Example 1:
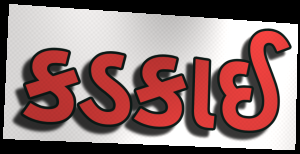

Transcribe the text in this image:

કડકાઈ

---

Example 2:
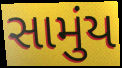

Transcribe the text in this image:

સામુંય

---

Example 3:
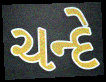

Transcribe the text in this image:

ચન્દે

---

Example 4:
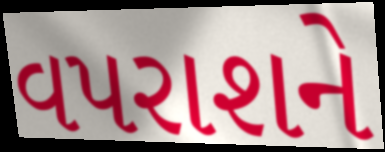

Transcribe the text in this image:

વપરાશને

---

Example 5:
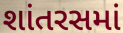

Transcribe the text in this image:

શાંતરસમાં